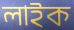
লাইক